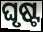
ଘୃଷ୍ଟ